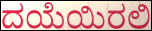
ದಯೆಯಿರಲಿ